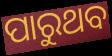
ପାରୁଥବ